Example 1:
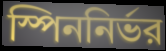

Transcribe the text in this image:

স্পিননির্ভর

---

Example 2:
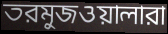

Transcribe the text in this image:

তরমুজওয়ালারা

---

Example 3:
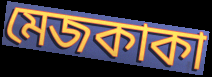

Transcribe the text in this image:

মেজকাকা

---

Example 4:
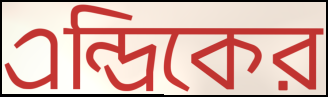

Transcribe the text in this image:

এন্দ্রিকের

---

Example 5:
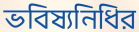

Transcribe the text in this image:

ভবিষ্যনিধির